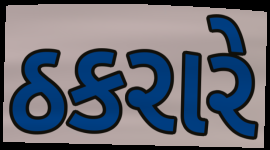
ઠકરારે